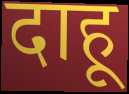
दाहू